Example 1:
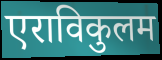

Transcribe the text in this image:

एराविकुलम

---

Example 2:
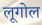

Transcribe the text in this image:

लूगोल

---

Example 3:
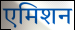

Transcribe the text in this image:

एमिशन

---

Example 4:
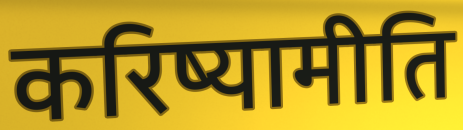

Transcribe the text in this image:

करिष्यामीति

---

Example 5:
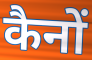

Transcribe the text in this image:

कैनों